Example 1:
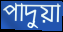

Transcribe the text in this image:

পাদুয়া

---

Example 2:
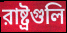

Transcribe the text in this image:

রাষ্ট্রগুলি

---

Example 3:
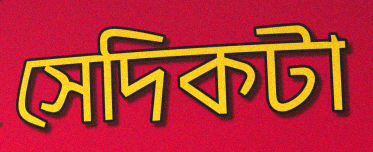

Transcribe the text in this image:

সেদিকটা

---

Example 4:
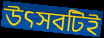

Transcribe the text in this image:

উৎসবটিই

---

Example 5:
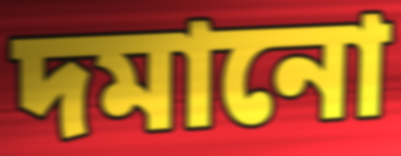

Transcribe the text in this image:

দমানো